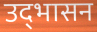
उद्भासन